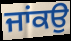
ਜਾਂਕਉ